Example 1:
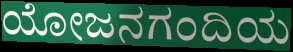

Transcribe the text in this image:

ಯೋಜನಗಂದಿಯ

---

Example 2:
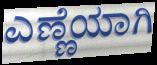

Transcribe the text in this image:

ಎಣ್ಣೆಯಾಗಿ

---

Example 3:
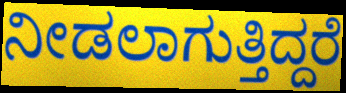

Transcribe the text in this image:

ನೀಡಲಾಗುತ್ತಿದ್ದರೆ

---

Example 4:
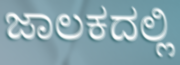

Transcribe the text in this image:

ಜಾಲಕದಲ್ಲಿ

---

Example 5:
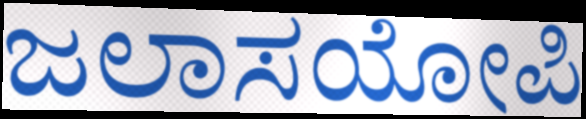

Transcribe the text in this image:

ಜಲಾಸಯೋಪಿ